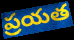
ప్రయత